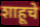
शाहूचे